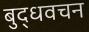
बुद्धवचन